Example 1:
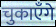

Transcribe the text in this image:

चुकाएँगे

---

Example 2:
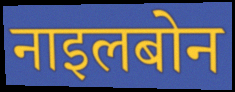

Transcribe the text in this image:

नाइलबोन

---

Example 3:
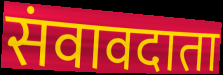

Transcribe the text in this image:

संवावदाता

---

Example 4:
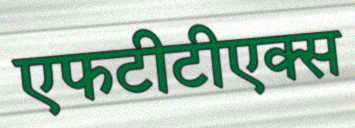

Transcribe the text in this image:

एफटीटीएक्स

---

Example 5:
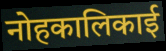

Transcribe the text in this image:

नोहकालिकाई